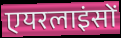
एयरलाइंसों